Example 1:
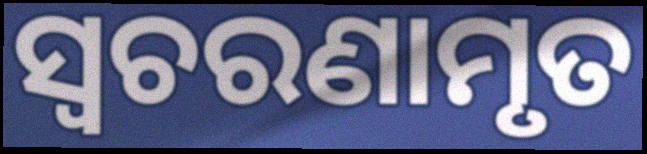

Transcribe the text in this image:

ସ୍ଵଚରଣାମୃତ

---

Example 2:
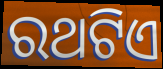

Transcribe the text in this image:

ରଥଟିଏ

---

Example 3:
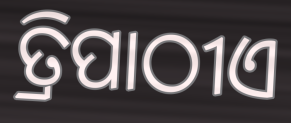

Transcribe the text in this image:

ତ୍ରିପାଠୀଏ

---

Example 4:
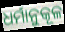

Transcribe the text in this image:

ଧର୍ମାନୁକୂଳ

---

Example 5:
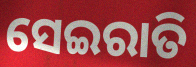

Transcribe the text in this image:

ସେଇରାତି